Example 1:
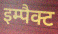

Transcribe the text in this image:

इम्पैक्ट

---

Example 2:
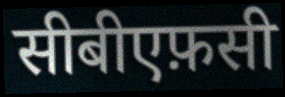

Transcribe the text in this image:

सीबीएफ़सी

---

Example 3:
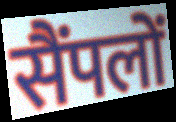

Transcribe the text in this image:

सैंपलों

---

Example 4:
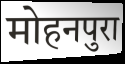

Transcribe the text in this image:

मोहनपुरा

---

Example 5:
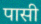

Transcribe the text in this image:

पासी